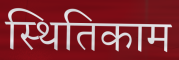
स्थितिकाम